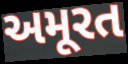
અમૂરત